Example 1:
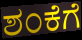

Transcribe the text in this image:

ಶಂಕೆಗೆ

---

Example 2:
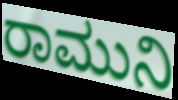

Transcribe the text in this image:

ರಾಮುನಿ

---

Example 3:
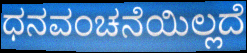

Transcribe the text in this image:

ಧನವಂಚನೆಯಿಲ್ಲದೆ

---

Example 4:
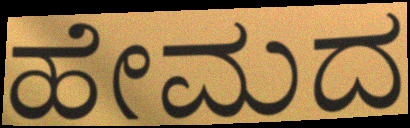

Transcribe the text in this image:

ಹೇಮದ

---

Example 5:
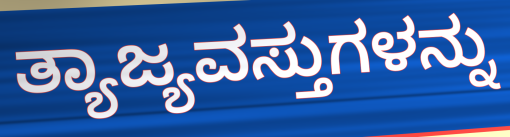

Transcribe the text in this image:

ತ್ಯಾಜ್ಯವಸ್ತುಗಳನ್ನು